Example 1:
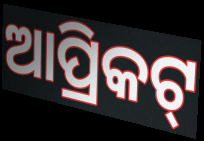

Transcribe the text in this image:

ଆପ୍ରିକଟ୍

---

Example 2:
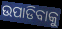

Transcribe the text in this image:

ଉପାଡିବାକୁ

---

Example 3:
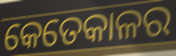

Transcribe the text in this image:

କେତେକାଳର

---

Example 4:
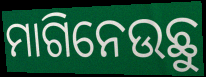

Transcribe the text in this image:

ମାଗିନେଉଛୁ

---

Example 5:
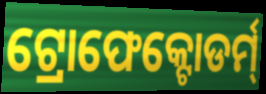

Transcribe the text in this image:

ଟ୍ରୋଫେକ୍ଟୋଡର୍ମ୍